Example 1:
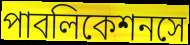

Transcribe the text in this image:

পাবলিকেশনসে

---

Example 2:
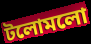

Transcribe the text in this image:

টলোমলো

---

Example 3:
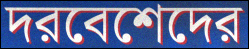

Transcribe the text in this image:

দরবেশেদের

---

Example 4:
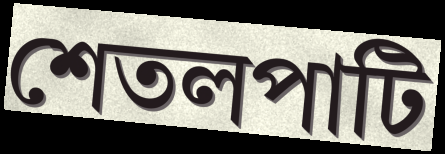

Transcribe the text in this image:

শেতলপাটি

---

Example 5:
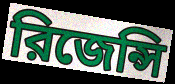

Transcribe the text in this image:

রিজেন্সি